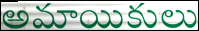
అమాయికులు